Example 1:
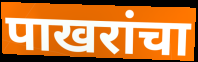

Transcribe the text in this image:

पाखरांचा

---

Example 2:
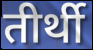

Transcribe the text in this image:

तीर्थी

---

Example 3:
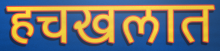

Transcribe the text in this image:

हचखलात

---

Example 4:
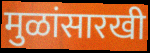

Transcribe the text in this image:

मुळांसारखी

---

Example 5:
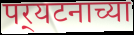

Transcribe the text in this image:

पर्यटनाच्या